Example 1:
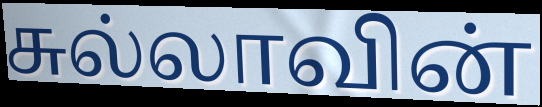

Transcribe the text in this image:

சுல்லாவின்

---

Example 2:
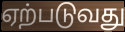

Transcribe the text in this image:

ஏற்படுவது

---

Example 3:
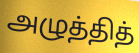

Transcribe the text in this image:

அழுத்தித்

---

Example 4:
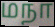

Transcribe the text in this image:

மநா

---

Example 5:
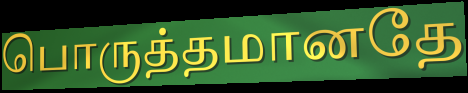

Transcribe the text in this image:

பொருத்தமானதே